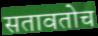
सतावतोच